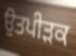
ਉਤਪੀੜਕ